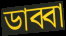
ডাব্বা